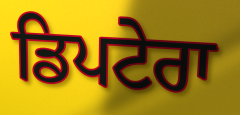
ਡਿਪਟੇਰਾ